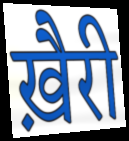
ख़ैरी